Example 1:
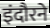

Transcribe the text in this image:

इंदौरने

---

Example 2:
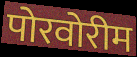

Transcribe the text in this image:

पोरवोरीम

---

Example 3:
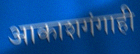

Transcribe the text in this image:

आकाशगंगाही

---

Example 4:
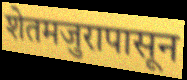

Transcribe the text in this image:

शेतमजुरापासून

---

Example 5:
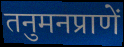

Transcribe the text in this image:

तनुमनप्राणें